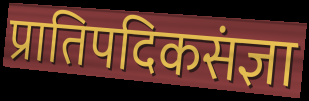
प्रातिपदिकसंज्ञा